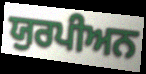
ਯੁਰਪੀਅਨ